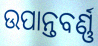
ଉପାନ୍ତବର୍ଣ୍ଣ